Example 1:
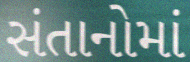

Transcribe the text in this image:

સંતાનોમાં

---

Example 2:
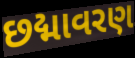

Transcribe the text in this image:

છદ્માવરણ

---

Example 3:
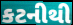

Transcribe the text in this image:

કટનીથી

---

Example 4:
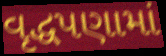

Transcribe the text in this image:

વૃદ્ધપણામાં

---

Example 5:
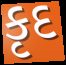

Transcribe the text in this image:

કૃદ